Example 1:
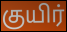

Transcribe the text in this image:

குயிர்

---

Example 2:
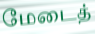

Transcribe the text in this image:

மேடைத்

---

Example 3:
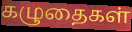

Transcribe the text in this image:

கழுதைகள்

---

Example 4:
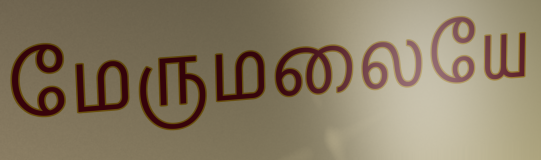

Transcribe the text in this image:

மேருமலையே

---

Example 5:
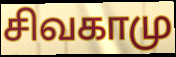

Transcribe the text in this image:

சிவகாமு